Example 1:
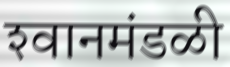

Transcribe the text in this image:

श्वानमंडळी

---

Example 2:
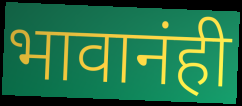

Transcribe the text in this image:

भावानंही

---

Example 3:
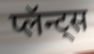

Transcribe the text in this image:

प्लॅन्ट्स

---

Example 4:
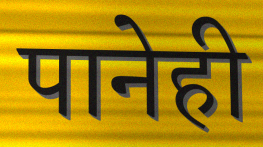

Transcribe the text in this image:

पानेही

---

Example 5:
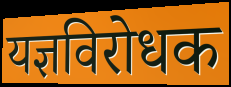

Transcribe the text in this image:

यज्ञविरोधक